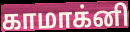
காமாக்னி